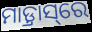
ମାଡ଼୍ରାସ୍‌ରେ